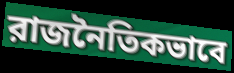
রাজনৈতিকভাবে